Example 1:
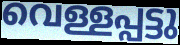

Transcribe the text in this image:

വെള്ളപ്പട്ടു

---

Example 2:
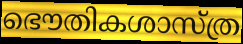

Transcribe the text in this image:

ഭൌതികശാസ്ത്ര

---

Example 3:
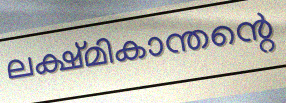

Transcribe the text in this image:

ലക്ഷ്മികാന്തന്റെ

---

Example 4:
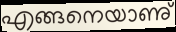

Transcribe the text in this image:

എങ്ങനെയാണു്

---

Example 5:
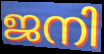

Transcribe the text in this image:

ജനി